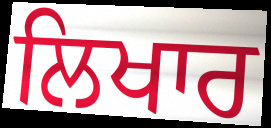
ਲਿਖਾਰ